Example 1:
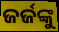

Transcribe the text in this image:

ଜର୍ଜଙ୍କୁ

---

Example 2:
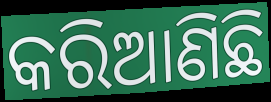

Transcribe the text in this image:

କରିଆଣିଛି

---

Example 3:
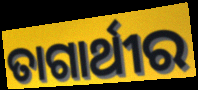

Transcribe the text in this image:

ତାଗାର୍ଥୀର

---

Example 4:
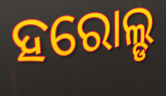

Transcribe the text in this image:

ହରୋଲ୍ଡ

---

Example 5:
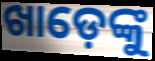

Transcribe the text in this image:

ଖାଡ଼େଙ୍କୁ